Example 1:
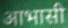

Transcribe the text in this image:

आभासी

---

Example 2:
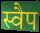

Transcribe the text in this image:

स्वैप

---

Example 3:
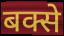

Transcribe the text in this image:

बक्से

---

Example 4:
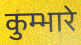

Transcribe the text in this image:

कुम्भारे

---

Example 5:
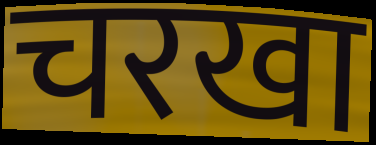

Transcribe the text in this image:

चरखा